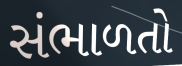
સંભાળતો